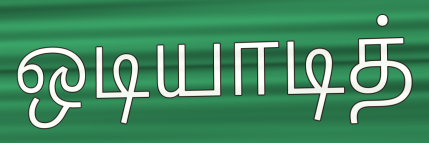
ஒடியாடித்